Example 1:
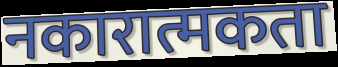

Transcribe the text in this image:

नकारात्मकता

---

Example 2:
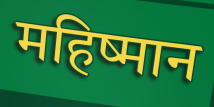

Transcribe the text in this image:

महिष्मान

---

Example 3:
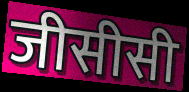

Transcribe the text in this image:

जीसीसी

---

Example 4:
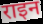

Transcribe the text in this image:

राइन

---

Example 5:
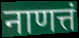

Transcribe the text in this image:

नाणत्तं